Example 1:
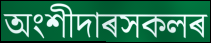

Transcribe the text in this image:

অংশীদাৰসকলৰ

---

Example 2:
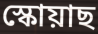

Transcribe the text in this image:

স্কোয়াছ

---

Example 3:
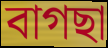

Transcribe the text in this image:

বাগছা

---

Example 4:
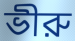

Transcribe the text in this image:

ভীৰু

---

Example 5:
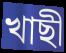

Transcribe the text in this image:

খাছী